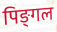
पिङ्गल